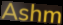
Ashm